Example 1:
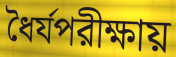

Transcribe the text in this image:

ধৈর্যপরীক্ষায়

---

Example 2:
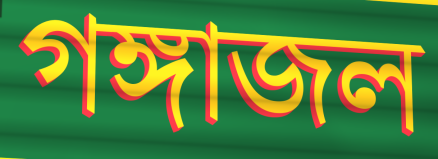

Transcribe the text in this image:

গঙ্গাজল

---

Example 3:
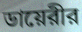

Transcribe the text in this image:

ডায়েরীর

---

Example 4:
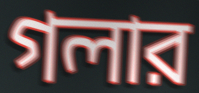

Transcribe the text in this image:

গলার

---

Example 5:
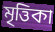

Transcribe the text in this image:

মৃত্তিকা